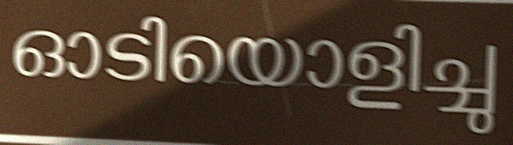
ഓടിയൊളിച്ചു